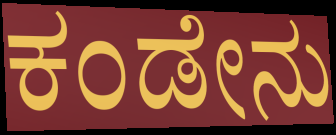
ಕಂಡೇನು